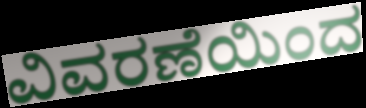
ವಿವರಣೆಯಿಂದ